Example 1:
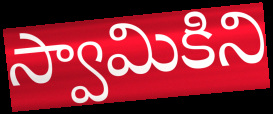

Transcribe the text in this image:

స్వామికిని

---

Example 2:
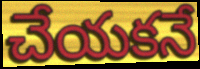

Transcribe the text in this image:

చేయకనే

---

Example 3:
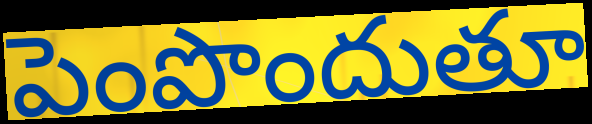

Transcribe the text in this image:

పెంపొందుతూ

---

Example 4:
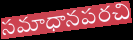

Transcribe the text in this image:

సమాధానపరచి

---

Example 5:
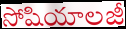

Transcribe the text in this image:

సోషియాలజీ